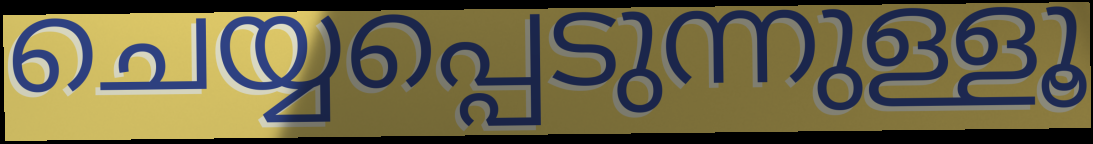
ചെയ്യപ്പെടുന്നുള്ളൂ